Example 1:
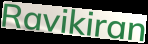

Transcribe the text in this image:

Ravikiran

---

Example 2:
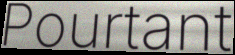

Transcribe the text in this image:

Pourtant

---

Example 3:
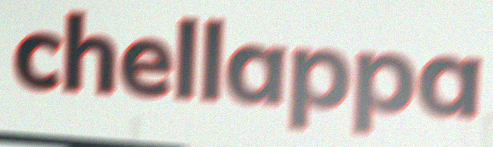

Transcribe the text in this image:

chellappa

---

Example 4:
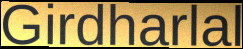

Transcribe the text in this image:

Girdharlal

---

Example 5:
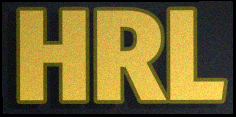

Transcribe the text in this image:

HRL